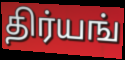
திர்யங்